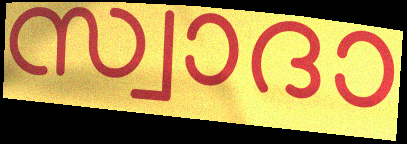
സ്വാദാ